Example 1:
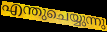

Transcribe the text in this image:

എന്തുചെയ്യുന്നു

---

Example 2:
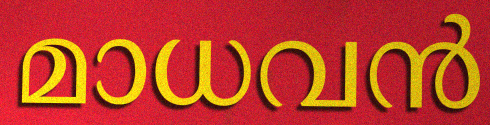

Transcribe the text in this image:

മാധവൻ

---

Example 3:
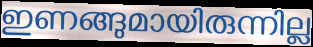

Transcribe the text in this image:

ഇണങ്ങുമായിരുന്നില്ല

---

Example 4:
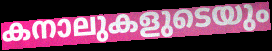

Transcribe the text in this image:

കനാലുകളുടെയും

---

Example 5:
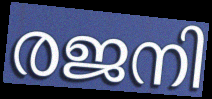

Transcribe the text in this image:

രജനി